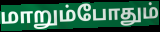
மாறும்போதும்